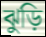
ঝুড়ি